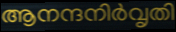
ആനന്ദനിർവൃതി